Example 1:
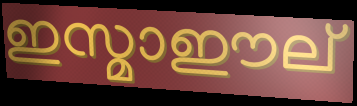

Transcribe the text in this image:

ഇസ്മാഈല്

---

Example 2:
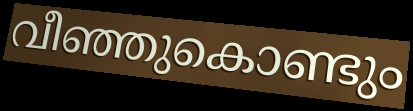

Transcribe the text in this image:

വീഞ്ഞുകൊണ്ടും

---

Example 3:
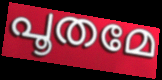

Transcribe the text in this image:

പൂതമേ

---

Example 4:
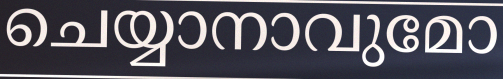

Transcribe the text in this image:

ചെയ്യാനാവുമോ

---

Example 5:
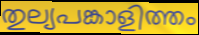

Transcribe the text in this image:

തുല്യപങ്കാളിത്തം